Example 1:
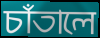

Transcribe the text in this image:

চাঁতালে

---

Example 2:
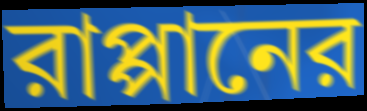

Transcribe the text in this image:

রাপ্পানের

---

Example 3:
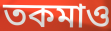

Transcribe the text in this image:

তকমাও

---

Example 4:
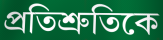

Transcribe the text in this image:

প্রতিশ্রুতিকে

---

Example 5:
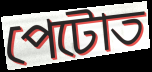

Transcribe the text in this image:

পেটোত